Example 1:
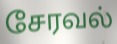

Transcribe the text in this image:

சேரவல்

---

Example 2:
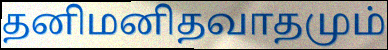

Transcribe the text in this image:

தனிமனிதவாதமும்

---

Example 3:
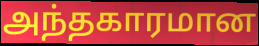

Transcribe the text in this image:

அந்தகாரமான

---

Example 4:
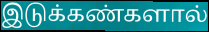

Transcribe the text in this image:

இடுக்கண்களால்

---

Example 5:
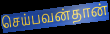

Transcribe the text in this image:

செய்பவன்தான்